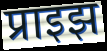
प्राइझ